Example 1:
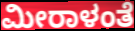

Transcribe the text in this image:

ಮೀರಾಳಂತೆ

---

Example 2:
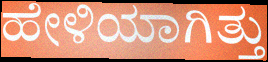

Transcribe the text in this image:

ಹೇಳಿಯಾಗಿತ್ತು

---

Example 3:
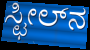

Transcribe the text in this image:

ಸ್ಟೀಲ್‌ನ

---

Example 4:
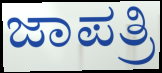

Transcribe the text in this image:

ಜಾಪತ್ರಿ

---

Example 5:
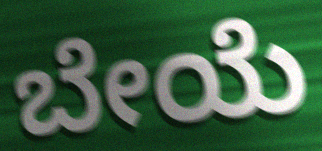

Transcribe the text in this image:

ಬೇಯೆ